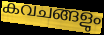
കവചങ്ങളും